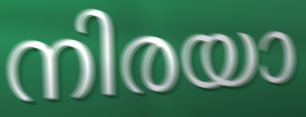
നിരയാ